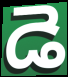
డె